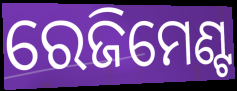
ରେଜିମେଣ୍ଟ